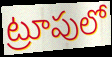
ట్రూపులో